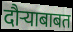
दौऱ्याबाबत